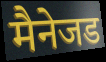
मैनेजड